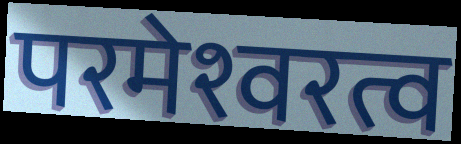
परमेश्वरत्व